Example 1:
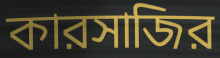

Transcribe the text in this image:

কারসাজির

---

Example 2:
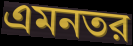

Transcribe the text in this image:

এমনতর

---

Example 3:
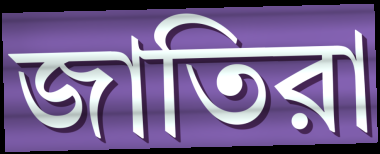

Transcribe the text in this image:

জাতিরা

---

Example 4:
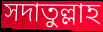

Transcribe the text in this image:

সদাতুল্লাহ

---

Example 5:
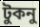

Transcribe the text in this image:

টুকনু